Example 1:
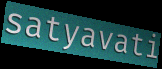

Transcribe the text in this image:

satyavati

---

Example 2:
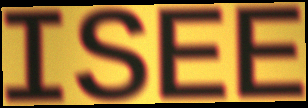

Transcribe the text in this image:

ISEE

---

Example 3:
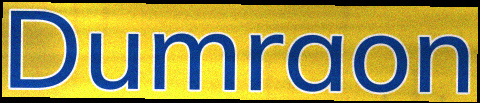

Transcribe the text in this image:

Dumraon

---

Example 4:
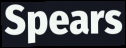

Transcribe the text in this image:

Spears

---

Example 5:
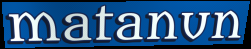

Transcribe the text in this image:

matanun